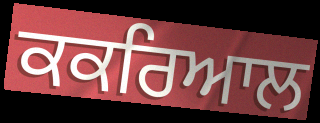
ਕਕਰਿਆਲ